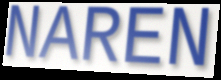
NAREN